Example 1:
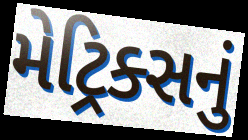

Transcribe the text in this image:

મેટ્રિક્સનું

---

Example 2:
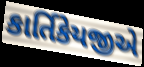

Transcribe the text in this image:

કાર્તિકેયજીએ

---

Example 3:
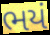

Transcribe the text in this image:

ભયં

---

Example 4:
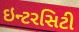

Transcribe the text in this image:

ઇન્ટરસિટી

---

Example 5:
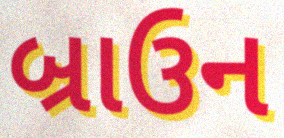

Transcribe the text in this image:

બ્રાઉન